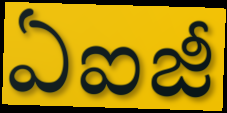
ఏఐజీ